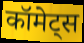
कॉमेट्स